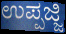
ಉಪ್ಪಜ್ಜಿ